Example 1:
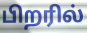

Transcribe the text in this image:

பிறரில்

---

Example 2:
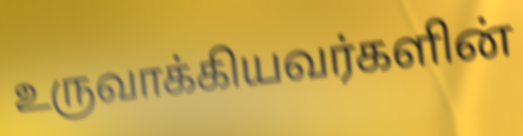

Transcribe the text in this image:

உருவாக்கியவர்களின்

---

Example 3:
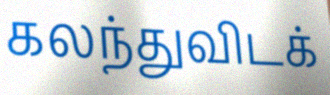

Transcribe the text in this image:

கலந்துவிடக்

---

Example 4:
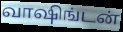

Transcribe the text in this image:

வாஷிங்டன்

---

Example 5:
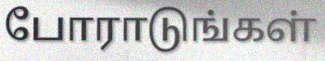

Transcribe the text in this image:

போராடுங்கள்